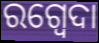
ରଗ୍ବେଦା